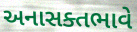
અનાસક્તભાવે